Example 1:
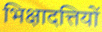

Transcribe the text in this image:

भिक्षादत्तियों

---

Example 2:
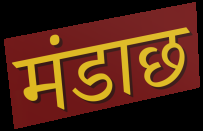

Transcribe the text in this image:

मंडाछ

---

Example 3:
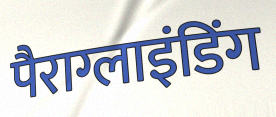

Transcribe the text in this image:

पैराग्लाइंडिंग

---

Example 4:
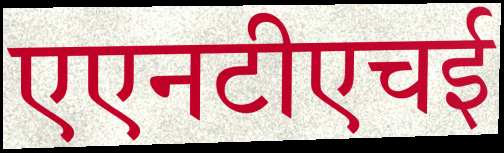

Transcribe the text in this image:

एएनटीएचई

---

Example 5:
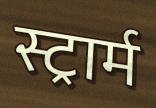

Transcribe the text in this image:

स्ट्रार्म